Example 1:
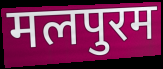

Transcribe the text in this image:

मलपुरम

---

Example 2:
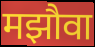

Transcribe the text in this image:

मझौवा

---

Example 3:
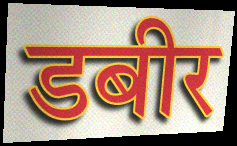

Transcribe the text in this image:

डबीर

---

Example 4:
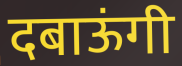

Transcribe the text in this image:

दबाऊंगी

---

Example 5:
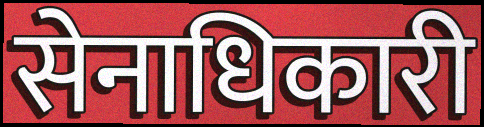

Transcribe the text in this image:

सेनाधिकारी